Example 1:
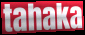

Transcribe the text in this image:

tahaka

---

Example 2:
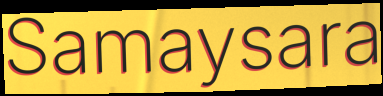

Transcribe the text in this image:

Samaysara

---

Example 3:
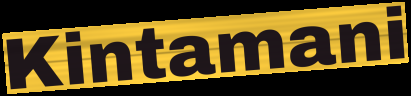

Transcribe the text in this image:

Kintamani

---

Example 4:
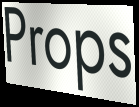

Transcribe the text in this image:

Props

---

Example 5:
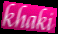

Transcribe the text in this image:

khaki